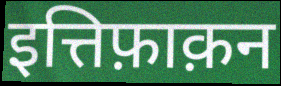
इत्तिफ़ाक़न